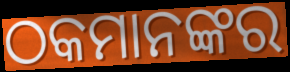
ଠକମାନଙ୍କର